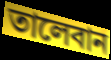
তালেবান